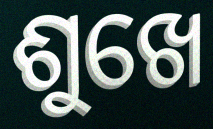
ଶୁଖେ